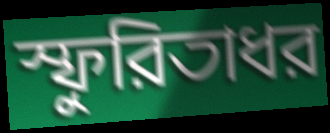
স্ফুরিতাধর